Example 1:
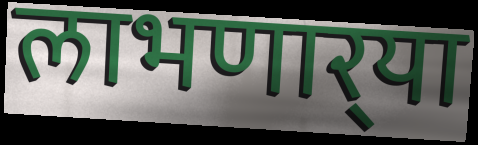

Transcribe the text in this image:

लाभणार्‍या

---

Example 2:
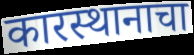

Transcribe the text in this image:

कारस्थानाचा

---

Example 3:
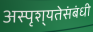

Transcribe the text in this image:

अस्पृश्यतेसंबंधी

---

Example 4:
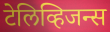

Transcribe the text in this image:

टेलिव्हिजन्स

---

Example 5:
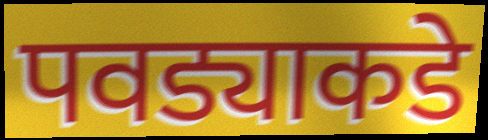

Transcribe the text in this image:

पवड्याकडे